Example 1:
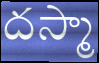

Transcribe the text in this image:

దస్మా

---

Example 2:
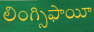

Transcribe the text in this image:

లింగ్సిఫాయీ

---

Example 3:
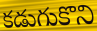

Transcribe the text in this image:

కడుగుకొని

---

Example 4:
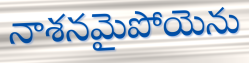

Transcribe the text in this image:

నాశనమైపోయెను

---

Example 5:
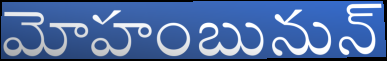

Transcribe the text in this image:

మోహంబునున్